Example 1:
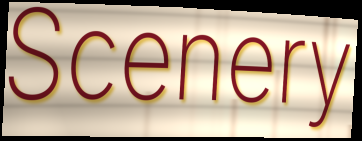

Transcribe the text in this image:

Scenery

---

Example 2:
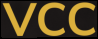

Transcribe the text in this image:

VCC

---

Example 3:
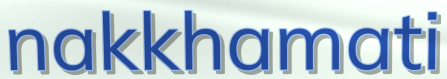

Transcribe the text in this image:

nakkhamati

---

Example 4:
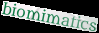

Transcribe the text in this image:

biomimatics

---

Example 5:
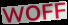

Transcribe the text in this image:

WOFF